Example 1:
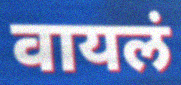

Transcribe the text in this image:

वायलं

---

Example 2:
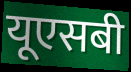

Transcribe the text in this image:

यूएसबी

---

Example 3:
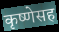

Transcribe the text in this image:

कृष्णेसह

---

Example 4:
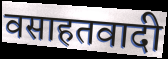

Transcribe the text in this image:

वसाहतवादी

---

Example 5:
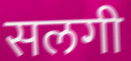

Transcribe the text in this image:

सलगी